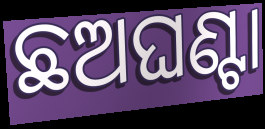
ଛଅଘଣ୍ଟା